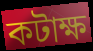
কটাক্ষ